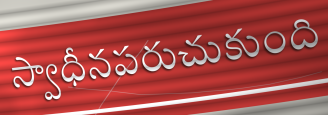
స్వాధీనపరుచుకుంది